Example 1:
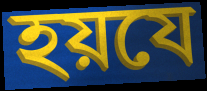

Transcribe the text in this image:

হয়যে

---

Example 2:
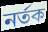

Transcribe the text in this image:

নৰ্তক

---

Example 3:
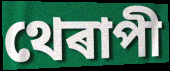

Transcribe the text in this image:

থেৰাপী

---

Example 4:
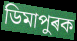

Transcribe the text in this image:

ডিমাপুৰক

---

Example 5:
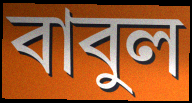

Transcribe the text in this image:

বাবুল